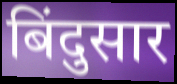
बिंदुसार